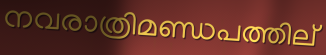
നവരാത്രിമണ്ഡപത്തില്